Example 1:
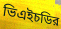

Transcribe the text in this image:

ভিএইচডির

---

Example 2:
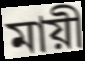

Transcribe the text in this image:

মায়ী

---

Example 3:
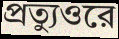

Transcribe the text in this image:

প্রত্যুওরে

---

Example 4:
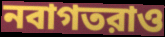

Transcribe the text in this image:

নবাগতরাও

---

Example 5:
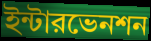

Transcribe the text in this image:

ইন্টারভেনশন